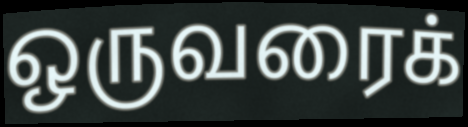
ஒருவரைக்